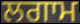
ਲਗਾਮ